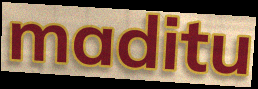
maditu